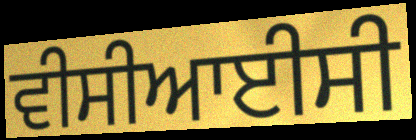
ਵੀਸੀਆਈਸੀ